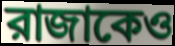
রাজাকেও